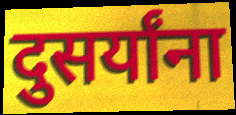
दुसर्यांना